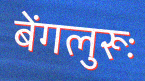
बेंगलुरूः